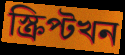
স্ক্ৰিপ্টখন